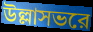
উল্লাসভরে